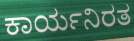
ಕಾರ್ಯನಿರತ